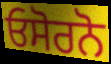
ਓਸੋਰਨੋ